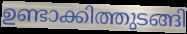
ഉണ്ടാക്കിത്തുടങ്ങി